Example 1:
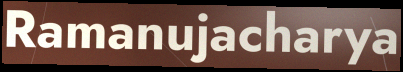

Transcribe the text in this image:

Ramanujacharya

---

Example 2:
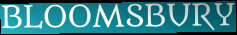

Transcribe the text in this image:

BLOOMSBURY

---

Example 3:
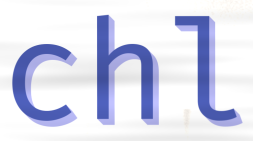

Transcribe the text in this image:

chl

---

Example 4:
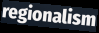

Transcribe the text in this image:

regionalism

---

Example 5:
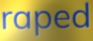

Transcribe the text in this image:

raped